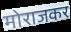
मोराजकर